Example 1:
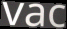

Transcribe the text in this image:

vac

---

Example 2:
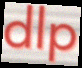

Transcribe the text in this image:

dlp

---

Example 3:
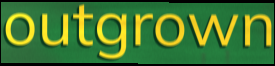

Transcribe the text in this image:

outgrown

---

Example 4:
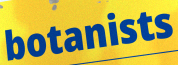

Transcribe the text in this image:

botanists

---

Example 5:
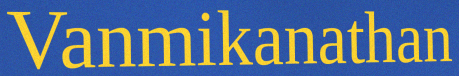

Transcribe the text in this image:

Vanmikanathan